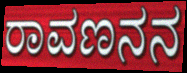
ರಾವಣನನ